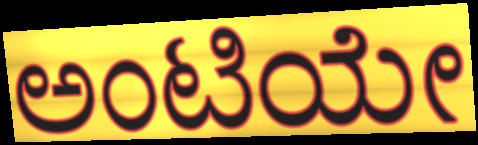
ಅಂಟಿಯೇ